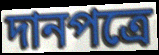
দানপত্রে